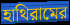
হাথিরামের